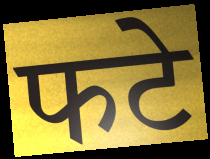
फटे